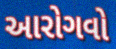
આરોગવો